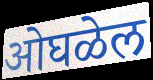
ओघळेल